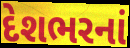
દેશભરનાં